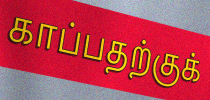
காப்பதற்குக்